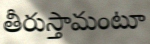
తీరుస్తామంటూ